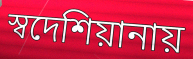
স্বদেশিয়ানায়